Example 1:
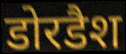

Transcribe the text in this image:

डोरडैश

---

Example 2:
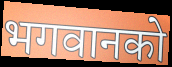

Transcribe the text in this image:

भगवानको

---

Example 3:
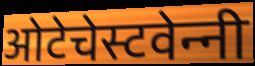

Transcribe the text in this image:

ओटेचेस्टवेन्नी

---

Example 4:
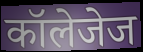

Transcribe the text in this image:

कॉलेजेज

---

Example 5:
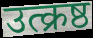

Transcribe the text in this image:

उत्क्रष्ठ